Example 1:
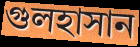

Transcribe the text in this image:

গুলহাসান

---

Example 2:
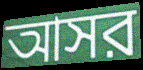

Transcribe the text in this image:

আসর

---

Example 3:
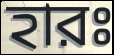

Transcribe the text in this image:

হারঃ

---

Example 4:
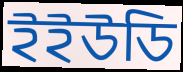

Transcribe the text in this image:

ইইউডি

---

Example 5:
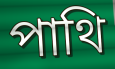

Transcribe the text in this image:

পাথি